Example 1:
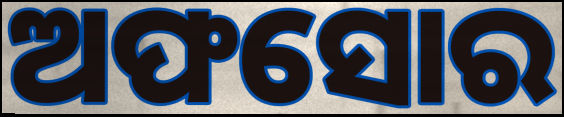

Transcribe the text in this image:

ଅଫସୋର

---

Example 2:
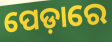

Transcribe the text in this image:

ପେଡ଼ାରେ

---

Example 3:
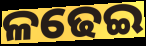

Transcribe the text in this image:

ଳଢେଇ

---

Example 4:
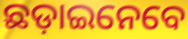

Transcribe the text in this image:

ଛଡ଼ାଇନେବେ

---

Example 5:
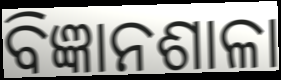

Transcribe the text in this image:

ବିଜ୍ଞାନଶାଳା